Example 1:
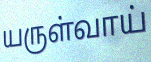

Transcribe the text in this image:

யருள்வாய்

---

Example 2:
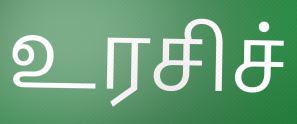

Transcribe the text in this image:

உரசிச்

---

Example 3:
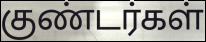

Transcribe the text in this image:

குண்டர்கள்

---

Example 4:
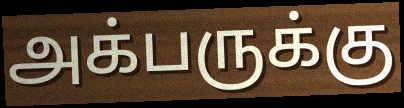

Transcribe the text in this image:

அக்பருக்கு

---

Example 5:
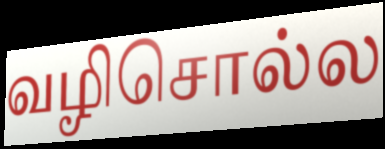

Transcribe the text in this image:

வழிசொல்ல